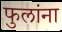
फुलांना